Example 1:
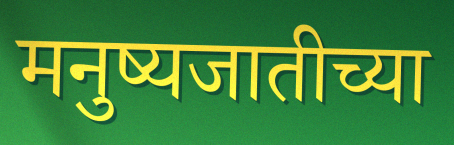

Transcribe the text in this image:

मनुष्यजातीच्या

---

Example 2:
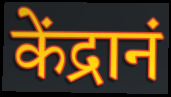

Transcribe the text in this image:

केंद्रानं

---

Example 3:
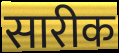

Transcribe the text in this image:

सारीक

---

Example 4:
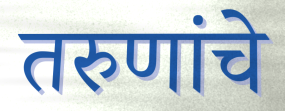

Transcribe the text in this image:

तरुणांचे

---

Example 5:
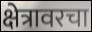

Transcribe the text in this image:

क्षेत्रावरचा